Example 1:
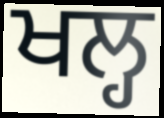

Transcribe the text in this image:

ਖਲ੍ਹ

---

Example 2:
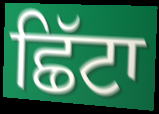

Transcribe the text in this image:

ਛਿੱਟਾ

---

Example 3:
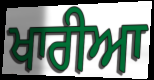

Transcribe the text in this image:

ਖਾਰੀਆ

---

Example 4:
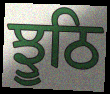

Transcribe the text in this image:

ਝੂਠਿ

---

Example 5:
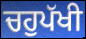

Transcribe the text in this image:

ਚਹੁਪੱਖੀ